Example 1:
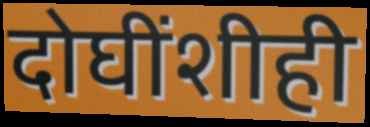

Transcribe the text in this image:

दोघींशीही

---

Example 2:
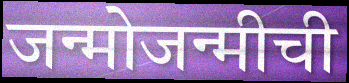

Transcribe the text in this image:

जन्मोजन्मीची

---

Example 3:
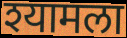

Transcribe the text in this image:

श्यामला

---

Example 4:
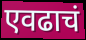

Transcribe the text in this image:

एवढाचं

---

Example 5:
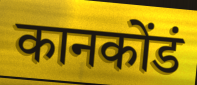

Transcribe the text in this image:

कानकोंडं